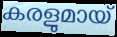
കരളുമായ്